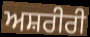
ਅਸ਼ਰੀਰੀ